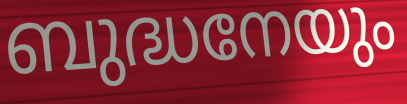
ബുദ്ധനേയും